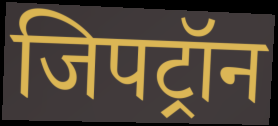
जिपट्रॉन